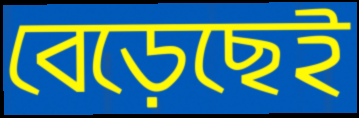
বেড়েছেই